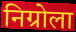
निग्रोला